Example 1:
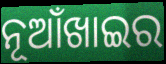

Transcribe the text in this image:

ନୂଆଁଖାଇର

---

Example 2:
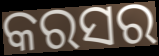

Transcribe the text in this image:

କରସର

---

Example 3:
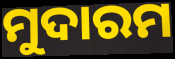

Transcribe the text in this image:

ମୁଦାରମ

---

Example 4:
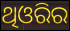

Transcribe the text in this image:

ଥିଓରିର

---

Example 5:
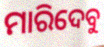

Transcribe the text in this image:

ମାରିଦେବୁ